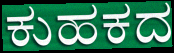
ಕುಹಕದ